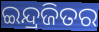
ଇନ୍ଦ୍ରଜିତର